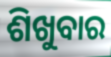
ଶିଖୁବାର